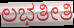
ಲಭತೀತಿ